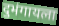
दुभंगायला